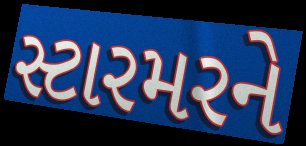
સ્ટારમરને